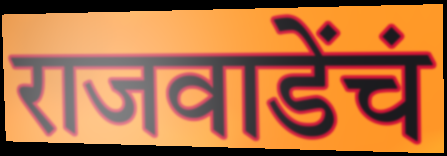
राजवाडेंचं